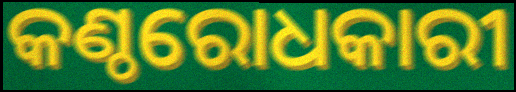
କଣ୍ଠରୋଧକାରୀ